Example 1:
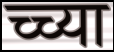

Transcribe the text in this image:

च्च्या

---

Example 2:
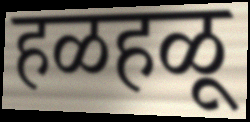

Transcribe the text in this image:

हळहळू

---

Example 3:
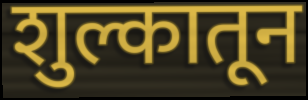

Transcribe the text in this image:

शुल्कातून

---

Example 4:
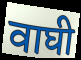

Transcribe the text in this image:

वाघी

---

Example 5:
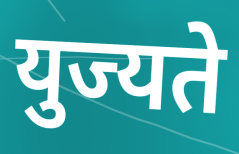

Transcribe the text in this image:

युज्यते